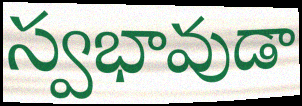
స్వభావుడా